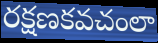
రక్షణకవచంలా